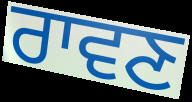
ਰਾਵਣ